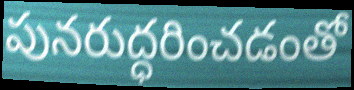
పునరుద్ధరించడంతో